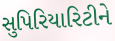
સુપિરિયારિટીને